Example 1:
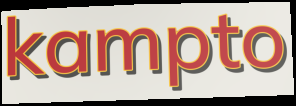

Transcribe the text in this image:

kampto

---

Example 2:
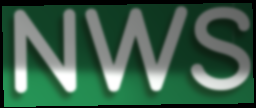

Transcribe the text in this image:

NWS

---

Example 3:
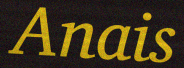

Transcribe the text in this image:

Anais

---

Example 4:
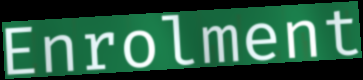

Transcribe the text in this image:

Enrolment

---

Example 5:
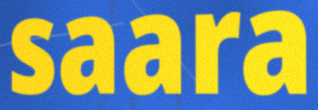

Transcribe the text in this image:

saara